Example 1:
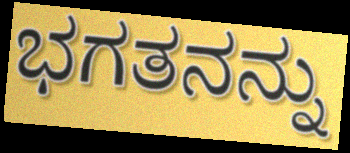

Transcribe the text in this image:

ಭಗತನನ್ನು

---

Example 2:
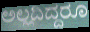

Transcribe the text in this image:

ಅಲ್ಲದಿದ್ದರೂ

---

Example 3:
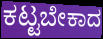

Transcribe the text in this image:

ಕಟ್ಟಬೇಕಾದ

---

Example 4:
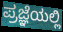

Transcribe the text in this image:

ಪ್ರಜ್ಞೆಯಲ್ಲಿ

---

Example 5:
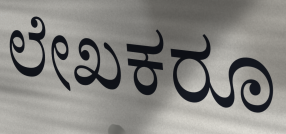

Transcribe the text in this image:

ಲೇಖಕರೂ